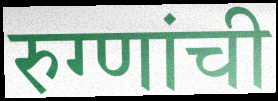
रुग्‍णांची